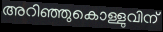
അറിഞ്ഞുകൊള്ളുവിന്